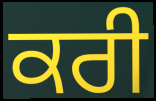
ਕਰੀ